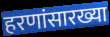
हरणांसारख्या